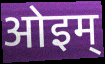
ओइम्